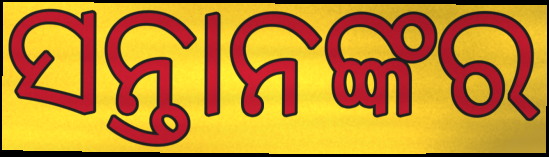
ସନ୍ତାନଙ୍କର